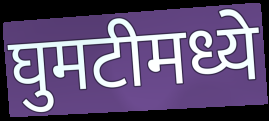
घुमटीमध्ये